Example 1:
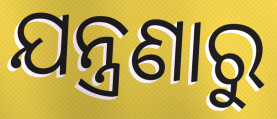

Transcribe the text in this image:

ଯନ୍ତ୍ରଣାରୁ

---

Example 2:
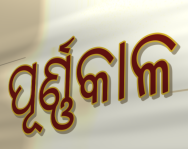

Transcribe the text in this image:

ପୂର୍ଣ୍ଣକାଳ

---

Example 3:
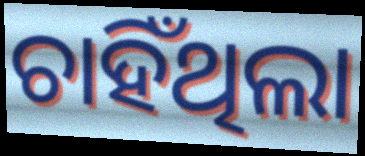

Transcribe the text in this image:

ଚାହିଁଥିଲା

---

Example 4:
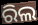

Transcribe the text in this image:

ରିଲ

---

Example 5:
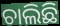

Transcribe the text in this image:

ଚାଲିଛି